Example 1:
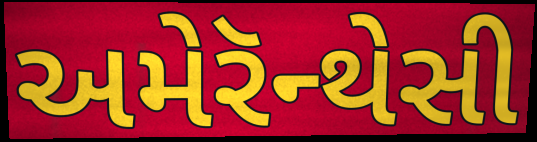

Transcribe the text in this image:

અમેરૅન્થેસી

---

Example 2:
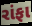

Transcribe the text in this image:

રાંફા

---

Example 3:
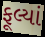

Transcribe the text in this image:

ફૂલ્યાં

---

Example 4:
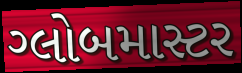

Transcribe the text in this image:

ગ્લોબમાસ્ટર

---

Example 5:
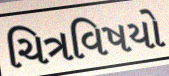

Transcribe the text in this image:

ચિત્રવિષયો